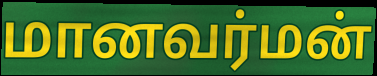
மானவர்மன்